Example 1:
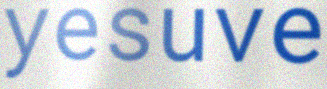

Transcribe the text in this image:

yesuve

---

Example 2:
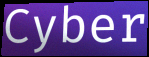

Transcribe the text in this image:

Cyber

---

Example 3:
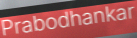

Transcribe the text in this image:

Prabodhankar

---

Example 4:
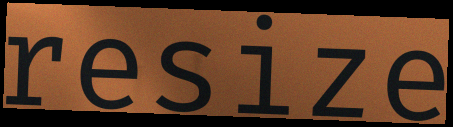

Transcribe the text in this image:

resize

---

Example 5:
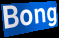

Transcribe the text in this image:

Bong